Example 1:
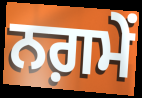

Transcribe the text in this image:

ਨਗ਼ਮੇਂ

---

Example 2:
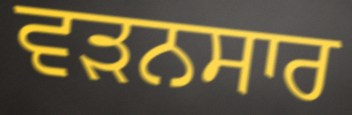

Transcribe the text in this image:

ਵੜਨਸਾਰ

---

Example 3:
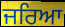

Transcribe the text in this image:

ਜਰਿਆ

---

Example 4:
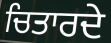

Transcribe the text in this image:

ਚਿਤਾਰਦੇ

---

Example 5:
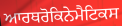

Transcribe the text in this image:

ਆਰਥਰੋਕਿਨੇਮੈਟਿਕਸ